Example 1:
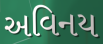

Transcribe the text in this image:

અવિનય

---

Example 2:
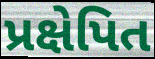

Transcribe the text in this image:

પ્રક્ષેપિત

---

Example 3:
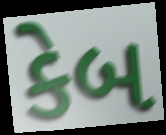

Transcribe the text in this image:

કેબ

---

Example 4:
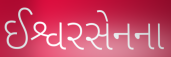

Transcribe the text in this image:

ઈશ્વરસેનના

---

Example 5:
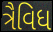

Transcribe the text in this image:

ત્રૈવિધ